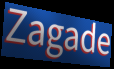
Zagade